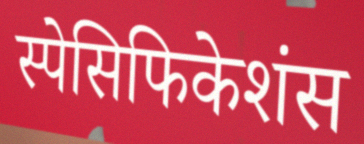
स्पेसिफिकेशंस